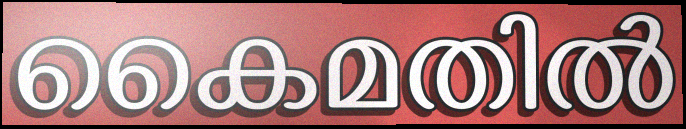
കൈമതിൽ